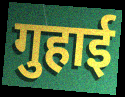
गुहाई